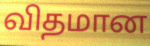
விதமான